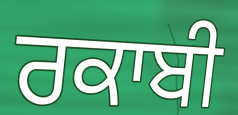
ਰਕਾਬੀ